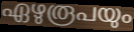
ഏഴുരൂപയും